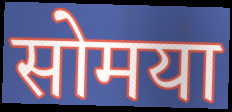
सोमया